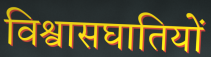
विश्वासघातियों